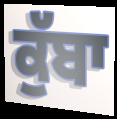
ਕੁੱਬਾ